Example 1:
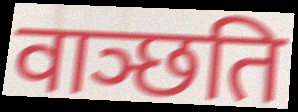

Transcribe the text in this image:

वाञ्छति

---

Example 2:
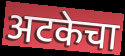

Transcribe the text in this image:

अटकेचा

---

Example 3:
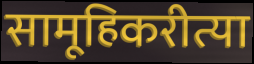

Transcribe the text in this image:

सामूहिकरीत्या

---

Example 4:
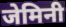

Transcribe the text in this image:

जेमिनी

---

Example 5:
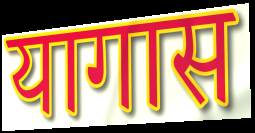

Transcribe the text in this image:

यागास